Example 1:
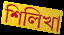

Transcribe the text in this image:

শিলিখা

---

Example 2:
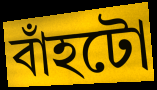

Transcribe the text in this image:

বাঁহটো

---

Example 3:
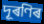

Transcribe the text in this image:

দূৰণিৰ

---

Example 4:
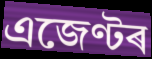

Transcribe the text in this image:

এজেণ্টৰ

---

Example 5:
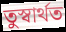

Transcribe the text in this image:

তুস্বাৰ্থত